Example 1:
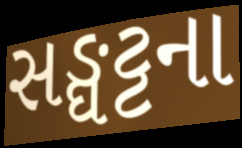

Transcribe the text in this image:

સઙ્ઘટ્ટના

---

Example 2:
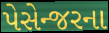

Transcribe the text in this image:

પેસેન્જરના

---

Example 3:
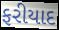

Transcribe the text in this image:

ફરીયાદ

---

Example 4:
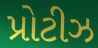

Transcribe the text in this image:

પ્રોટીઝ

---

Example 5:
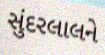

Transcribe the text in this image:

સુંદરલાલને